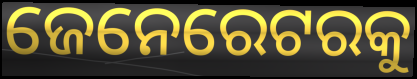
ଜେନେରେଟରକୁ